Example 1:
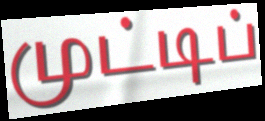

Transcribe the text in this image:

முட்டிப்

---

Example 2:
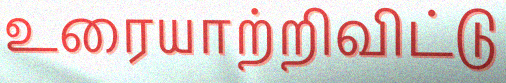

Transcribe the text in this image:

உரையாற்றிவிட்டு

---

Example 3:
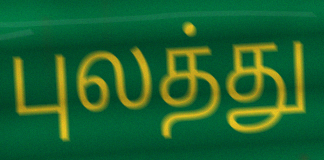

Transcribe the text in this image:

புலத்து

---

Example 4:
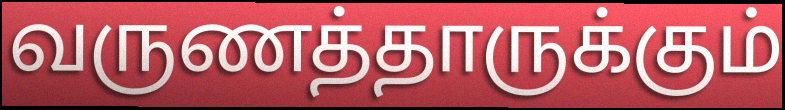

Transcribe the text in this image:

வருணத்தாருக்கும்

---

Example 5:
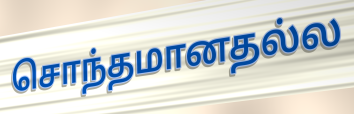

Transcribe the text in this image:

சொந்தமானதல்ல